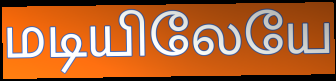
மடியிலேயே